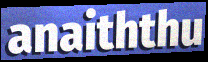
anaiththu